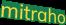
mitraho